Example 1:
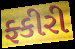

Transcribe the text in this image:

ફ્કીરી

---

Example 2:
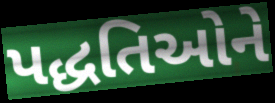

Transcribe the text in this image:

પદ્ધતિઓને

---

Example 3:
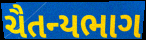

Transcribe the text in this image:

ચૈતન્યભાગ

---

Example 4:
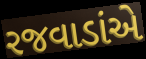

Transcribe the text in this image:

રજવાડાંએ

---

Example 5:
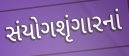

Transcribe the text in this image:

સંયોગશૃંગારનાં